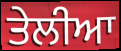
ਤੇਲੀਆ